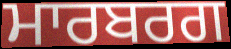
ਮਾਰਬਰਗ